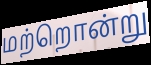
மற்றொன்று